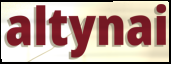
altynai